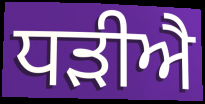
ਧੜੀਐ